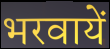
भरवायें